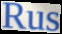
Rus